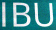
IBU